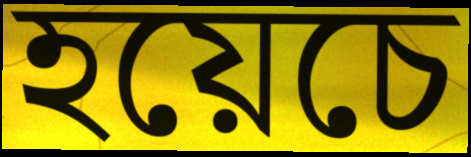
হয়েচে